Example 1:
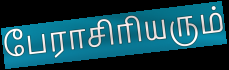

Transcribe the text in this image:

பேராசிரியரும்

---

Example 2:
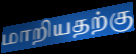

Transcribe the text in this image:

மாறியதற்கு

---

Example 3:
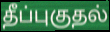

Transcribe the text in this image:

தீப்புகுதல்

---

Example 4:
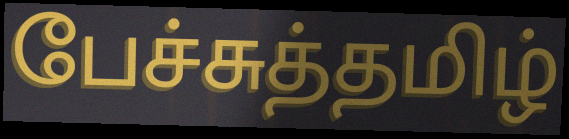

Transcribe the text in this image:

பேச்சுத்தமிழ்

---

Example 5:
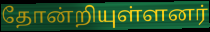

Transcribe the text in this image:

தோன்றியுள்ளனர்